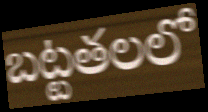
బట్టతలలో